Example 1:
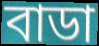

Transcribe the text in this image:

বাডা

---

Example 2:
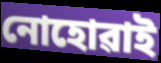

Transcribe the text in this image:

নোহোৱাই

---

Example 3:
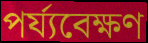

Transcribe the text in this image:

পৰ্য্যবেক্ষণ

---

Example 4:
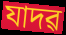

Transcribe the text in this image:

যাদৱ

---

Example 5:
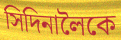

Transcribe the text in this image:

সিদিনালৈকে